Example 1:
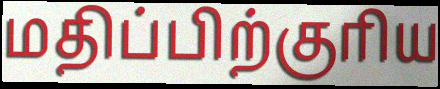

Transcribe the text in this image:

மதிப்பிற்குரிய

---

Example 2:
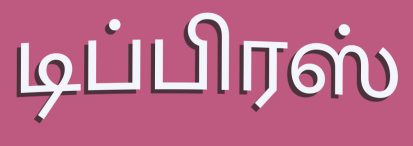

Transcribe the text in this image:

டிப்பிரஸ்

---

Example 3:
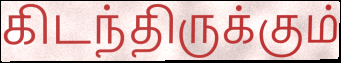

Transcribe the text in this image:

கிடந்திருக்கும்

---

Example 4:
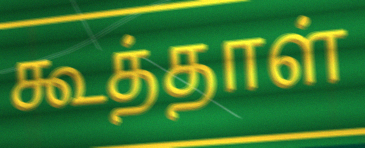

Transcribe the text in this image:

கூத்தாள்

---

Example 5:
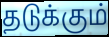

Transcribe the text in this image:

தடுக்கும்